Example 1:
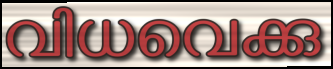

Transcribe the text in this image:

വിധവെക്കു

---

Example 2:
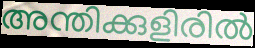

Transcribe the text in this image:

അന്തിക്കുളിരിൽ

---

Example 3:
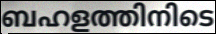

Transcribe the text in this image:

ബഹളത്തിനിടെ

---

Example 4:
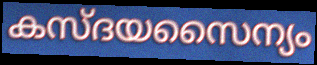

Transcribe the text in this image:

കസ്ദയസൈന്യം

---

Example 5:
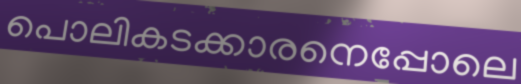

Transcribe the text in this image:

പൊലികടക്കാരനെപ്പോലെ